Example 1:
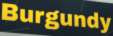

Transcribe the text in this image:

Burgundy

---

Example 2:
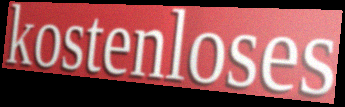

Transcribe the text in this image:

kostenloses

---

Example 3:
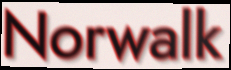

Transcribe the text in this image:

Norwalk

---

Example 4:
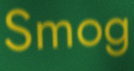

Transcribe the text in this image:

Smog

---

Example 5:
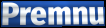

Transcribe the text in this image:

Premnu